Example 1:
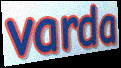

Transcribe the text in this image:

varda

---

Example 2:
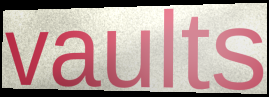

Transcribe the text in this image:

vaults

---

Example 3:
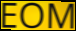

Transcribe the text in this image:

EOM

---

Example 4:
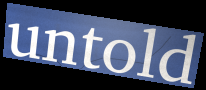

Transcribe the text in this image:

untold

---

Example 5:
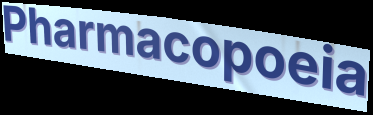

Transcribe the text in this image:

Pharmacopoeia